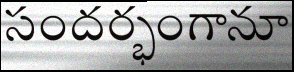
సందర్భంగానూ